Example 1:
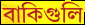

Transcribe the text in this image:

বাকিগুলি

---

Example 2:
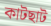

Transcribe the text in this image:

কাটছাট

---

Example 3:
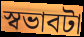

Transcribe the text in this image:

স্বভাবটা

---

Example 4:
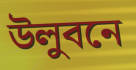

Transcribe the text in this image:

উলুবনে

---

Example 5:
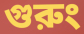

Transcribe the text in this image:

গুরুং